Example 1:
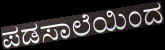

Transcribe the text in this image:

ಪಡಸಾಲೆಯಿಂದ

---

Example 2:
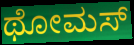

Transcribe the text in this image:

ಥೋಮಸ್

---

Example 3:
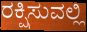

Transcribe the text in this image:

ರಕ್ಷಿಸುವಲ್ಲಿ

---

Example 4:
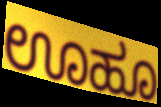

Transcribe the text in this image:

ಊಹೂ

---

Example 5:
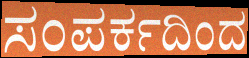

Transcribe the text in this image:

ಸಂಪರ್ಕದಿಂದ